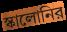
স্কালোনির